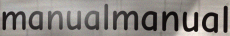
manualmanual